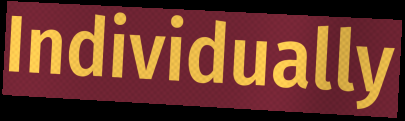
Individually